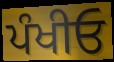
ਪੰਖੀਓ